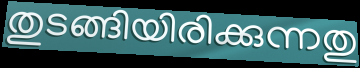
തുടങ്ങിയിരിക്കുന്നതു